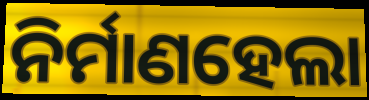
ନିର୍ମାଣହେଲା